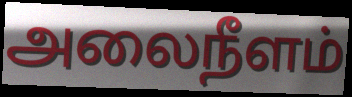
அலைநீளம்